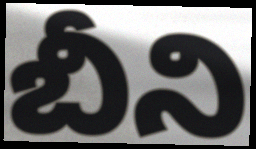
బీని